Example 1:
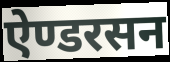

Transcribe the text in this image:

ऐण्डरसन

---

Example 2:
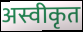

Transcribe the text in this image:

अस्वीकृत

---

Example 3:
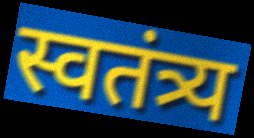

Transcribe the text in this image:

स्वतंत्र्य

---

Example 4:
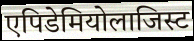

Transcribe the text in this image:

एपिडेमियोलाजिस्ट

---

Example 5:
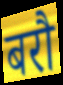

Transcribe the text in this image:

बरौ